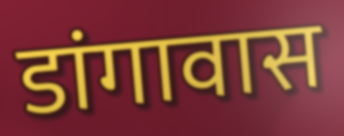
डांगावास